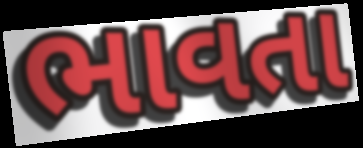
ભાવતા